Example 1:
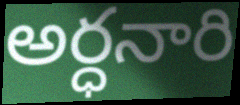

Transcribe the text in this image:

అర్ధనారి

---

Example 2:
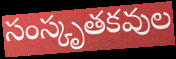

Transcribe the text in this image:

సంస్కృతకవుల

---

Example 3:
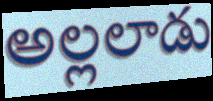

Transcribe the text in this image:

అల్లలాడు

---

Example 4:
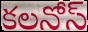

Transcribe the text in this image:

కలనోస్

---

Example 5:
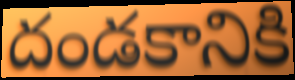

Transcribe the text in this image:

దండకానికి